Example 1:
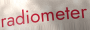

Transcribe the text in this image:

radiometer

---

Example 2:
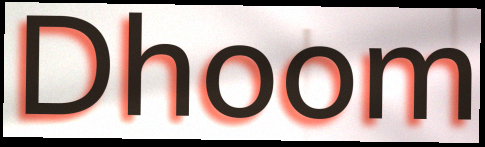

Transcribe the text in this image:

Dhoom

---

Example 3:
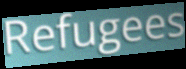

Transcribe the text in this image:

Refugees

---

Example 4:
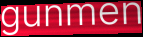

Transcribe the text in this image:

gunmen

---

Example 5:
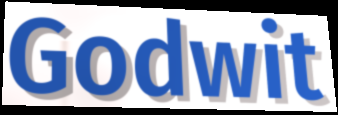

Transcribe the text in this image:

Godwit